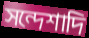
সন্দেশাদি